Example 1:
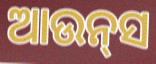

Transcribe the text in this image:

ଆଉନ୍‍ସ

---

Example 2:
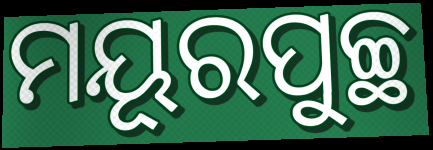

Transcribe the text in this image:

ମୟୂରପୁଚ୍ଛ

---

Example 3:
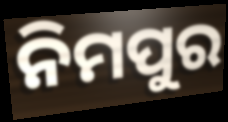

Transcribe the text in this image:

ନିମପୁର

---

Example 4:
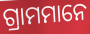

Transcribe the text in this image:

ଗ୍ରାମମାନେ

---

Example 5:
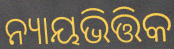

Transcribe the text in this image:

ନ୍ୟାୟଭିତ୍ତିକ